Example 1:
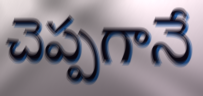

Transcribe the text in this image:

చెప్పగానే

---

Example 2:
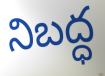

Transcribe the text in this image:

నిబద్ధ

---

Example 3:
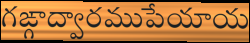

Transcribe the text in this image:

గఙ్గాద్వారముపేయాయ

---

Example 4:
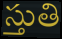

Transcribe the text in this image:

స్తుతి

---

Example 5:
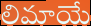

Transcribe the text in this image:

లిమాయే